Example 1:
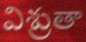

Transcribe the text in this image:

విశ్రుతా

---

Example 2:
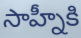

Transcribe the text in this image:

సాహ్నీకి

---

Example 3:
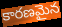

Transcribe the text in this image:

కారణమైన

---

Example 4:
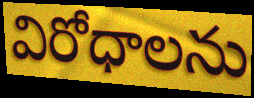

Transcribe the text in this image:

విరోధాలను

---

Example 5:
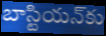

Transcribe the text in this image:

బాస్టియన్‌కు